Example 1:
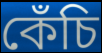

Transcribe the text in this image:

কেঁচি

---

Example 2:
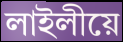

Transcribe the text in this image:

লাইলীয়ে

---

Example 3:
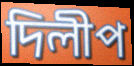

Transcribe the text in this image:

দিলীপ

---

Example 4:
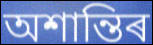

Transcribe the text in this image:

অশান্তিৰ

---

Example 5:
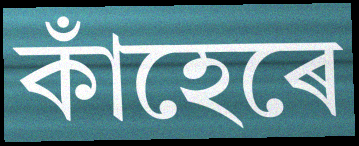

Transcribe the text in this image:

কাঁহেৰে